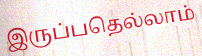
இருப்பதெல்லாம்